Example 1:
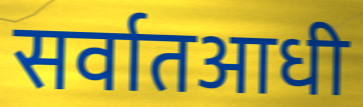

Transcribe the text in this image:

सर्वातआधी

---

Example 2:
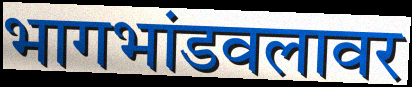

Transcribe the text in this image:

भागभांडवलावर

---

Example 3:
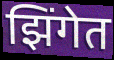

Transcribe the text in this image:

झिंगेत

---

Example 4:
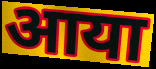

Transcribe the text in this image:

आया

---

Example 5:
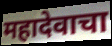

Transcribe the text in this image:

महादेवाचा